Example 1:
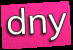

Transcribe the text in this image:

dny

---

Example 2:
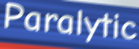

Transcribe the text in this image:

Paralytic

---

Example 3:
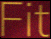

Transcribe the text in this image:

Fit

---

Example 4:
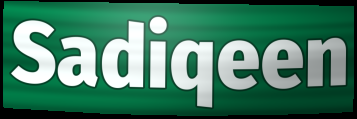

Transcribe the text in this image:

Sadiqeen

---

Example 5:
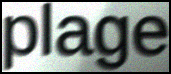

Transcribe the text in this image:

plage